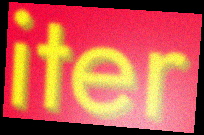
iter